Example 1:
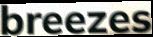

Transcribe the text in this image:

breezes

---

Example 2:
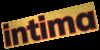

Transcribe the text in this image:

intima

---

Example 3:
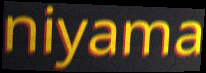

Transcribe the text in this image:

niyama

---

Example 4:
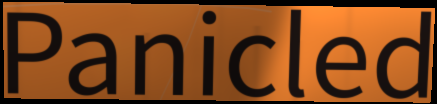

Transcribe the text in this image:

Panicled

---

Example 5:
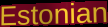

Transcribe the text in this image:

Estonian